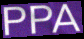
PPA